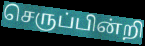
செருப்பின்றி